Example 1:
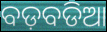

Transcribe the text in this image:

ବଡ଼ବଡିଆ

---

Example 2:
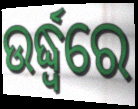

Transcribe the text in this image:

ଉର୍ଦ୍ଧ୍ଵରେ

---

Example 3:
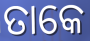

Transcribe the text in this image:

ତାକେ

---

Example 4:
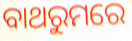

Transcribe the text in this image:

ବାଥରୁମରେ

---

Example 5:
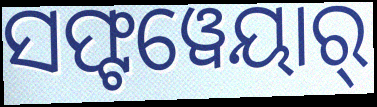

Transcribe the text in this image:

ସଫ୍ଟୱେୟାର୍